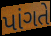
પાંગતે